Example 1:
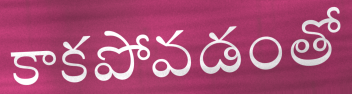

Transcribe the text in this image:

కాకపోవడంతో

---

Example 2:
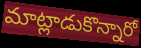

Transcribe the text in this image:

మాట్లాడుకొన్నారో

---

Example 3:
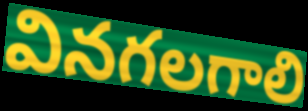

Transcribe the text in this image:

వినగలగాలి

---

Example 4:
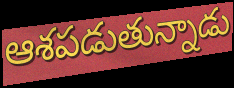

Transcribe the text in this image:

ఆశపడుతున్నాడు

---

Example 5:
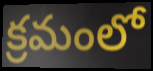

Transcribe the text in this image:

క్రమంలో